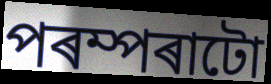
পৰম্পৰাটো